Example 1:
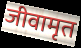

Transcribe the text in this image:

जीवामृत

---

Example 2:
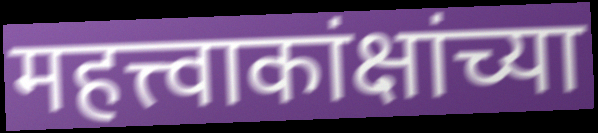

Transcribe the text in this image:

महत्त्वाकांक्षांच्या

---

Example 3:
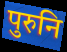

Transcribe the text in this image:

पुरुनि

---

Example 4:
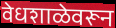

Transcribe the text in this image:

वेधशाळेवरून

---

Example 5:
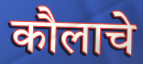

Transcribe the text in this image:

कौलाचे